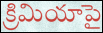
క్రిమియాపై